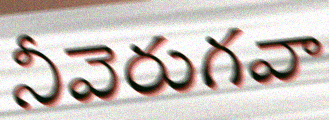
నీవెరుగవా